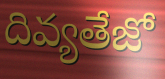
దివ్యతేజో